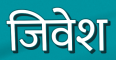
जिवेश